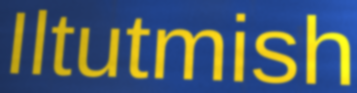
Iltutmish